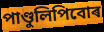
পাণ্ডুলিপিবোৰ